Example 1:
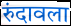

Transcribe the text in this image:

रुंदावला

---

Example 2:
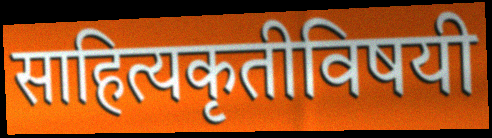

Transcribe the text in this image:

साहित्यकृतीविषयी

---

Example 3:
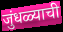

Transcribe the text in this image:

जुंधळ्याची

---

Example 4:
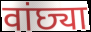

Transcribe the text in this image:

वांछ्या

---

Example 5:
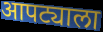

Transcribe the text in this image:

आपट्याला